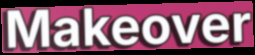
Makeover